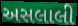
અસલાલી